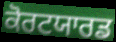
ਕੋਰਟਯਾਰਡ